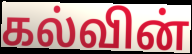
கல்வின்